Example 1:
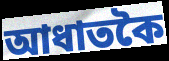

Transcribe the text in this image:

আধাতকৈ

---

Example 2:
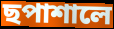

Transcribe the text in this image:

ছপাশালে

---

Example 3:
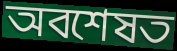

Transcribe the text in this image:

অবশেষত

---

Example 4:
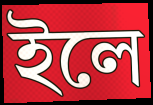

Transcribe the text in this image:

ইলে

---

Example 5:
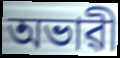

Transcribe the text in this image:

অভাৱী